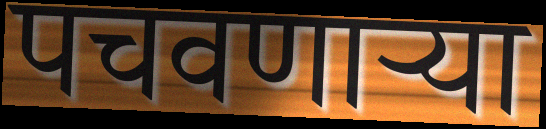
पचवणाऱ्या